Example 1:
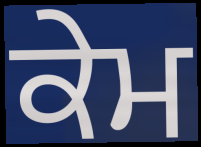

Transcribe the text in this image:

ਕੇਮ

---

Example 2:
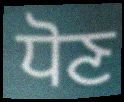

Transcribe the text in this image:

ਧੋਣ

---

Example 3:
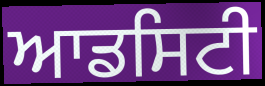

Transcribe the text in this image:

ਆਡਸਿਟੀ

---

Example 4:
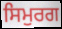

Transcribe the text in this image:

ਸਿਮੁਰਗ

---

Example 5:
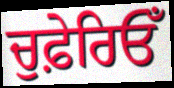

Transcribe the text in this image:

ਚੁਫ਼ੇਰਿਓਁ